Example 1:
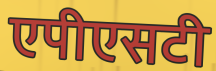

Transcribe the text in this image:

एपीएसटी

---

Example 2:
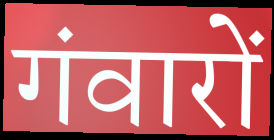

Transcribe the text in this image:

गंवारों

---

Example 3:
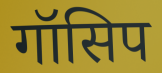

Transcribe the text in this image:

गॉसिप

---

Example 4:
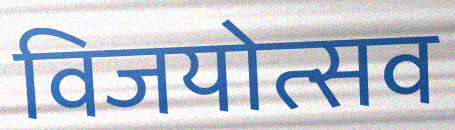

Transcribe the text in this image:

विजयोत्सव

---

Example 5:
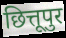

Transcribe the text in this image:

छित्तूपुर